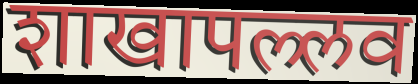
शाखापल्लव